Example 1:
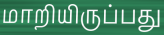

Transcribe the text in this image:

மாறியிருப்பது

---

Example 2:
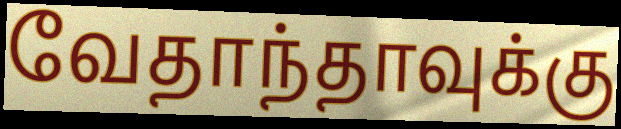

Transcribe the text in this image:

வேதாந்தாவுக்கு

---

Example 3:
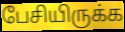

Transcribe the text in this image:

பேசியிருக்க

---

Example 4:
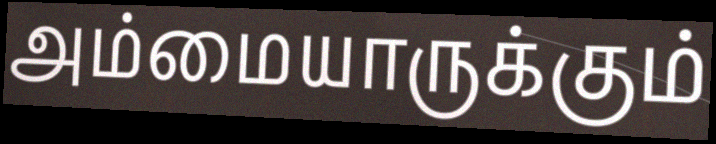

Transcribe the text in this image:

அம்மையாருக்கும்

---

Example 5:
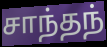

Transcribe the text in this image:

சாந்தந்